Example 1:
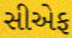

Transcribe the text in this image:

સીએફ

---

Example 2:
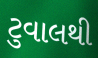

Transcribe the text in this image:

ટુવાલથી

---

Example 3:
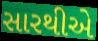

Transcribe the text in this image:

સારથીએ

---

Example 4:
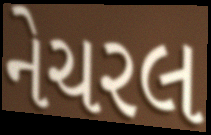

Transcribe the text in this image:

નેચરલ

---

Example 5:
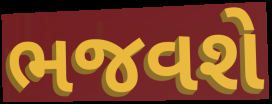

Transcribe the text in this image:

ભજવશે